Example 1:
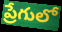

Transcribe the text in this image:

ప్రేగులో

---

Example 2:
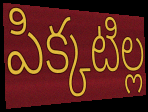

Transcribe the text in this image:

పిక్కటిల్ల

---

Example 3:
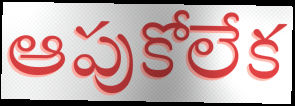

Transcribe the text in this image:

ఆపుకోలేక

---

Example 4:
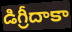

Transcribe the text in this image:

డిగ్రీదాకా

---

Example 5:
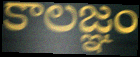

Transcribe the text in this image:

కాలజ్ఞం